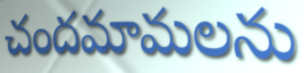
చందమామలను